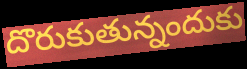
దొరుకుతున్నందుకు